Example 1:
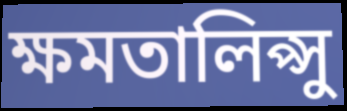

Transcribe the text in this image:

ক্ষমতালিপ্সু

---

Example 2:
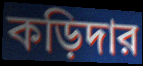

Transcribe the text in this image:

কড়িদার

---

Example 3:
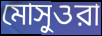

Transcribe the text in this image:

মোসুওরা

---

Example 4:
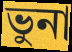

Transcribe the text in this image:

ভুনা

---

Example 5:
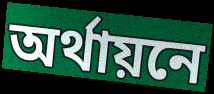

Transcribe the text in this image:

অর্থায়নে